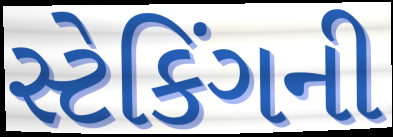
સ્ટેકિંગની